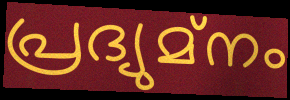
പ്രദ്യുമ്നം